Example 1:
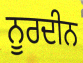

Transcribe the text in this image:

ਨੂਰਦੀਨ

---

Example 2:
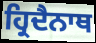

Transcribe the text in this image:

ਹ੍ਰਿਦੈਨਾਥ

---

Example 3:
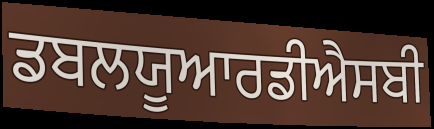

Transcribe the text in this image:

ਡਬਲਯੂਆਰਡੀਐਸਬੀ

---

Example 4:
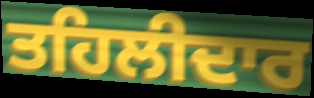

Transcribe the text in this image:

ਤਹਿਲੀਦਾਰ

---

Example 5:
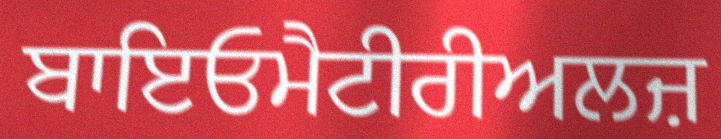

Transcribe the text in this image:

ਬਾਇਓਮੈਟੀਰੀਅਲਜ਼